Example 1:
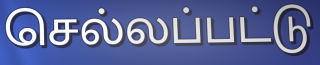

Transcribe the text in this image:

செல்லப்பட்டு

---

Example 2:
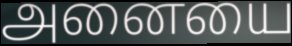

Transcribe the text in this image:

அனையை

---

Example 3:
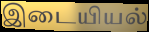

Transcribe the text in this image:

இடையியல்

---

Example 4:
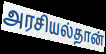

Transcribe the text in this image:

அரசியல்தான்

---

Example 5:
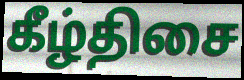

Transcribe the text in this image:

கீழ்திசை